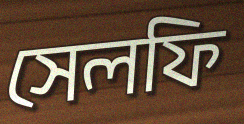
সেলফি